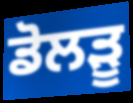
ਡੋਲੜੂ